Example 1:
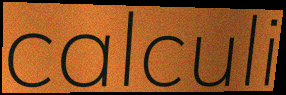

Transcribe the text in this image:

calculi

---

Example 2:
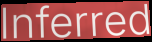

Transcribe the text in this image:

Inferred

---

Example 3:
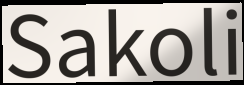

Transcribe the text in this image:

Sakoli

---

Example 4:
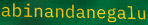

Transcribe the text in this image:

abinandanegalu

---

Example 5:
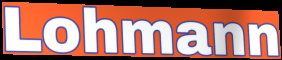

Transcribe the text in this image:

Lohmann